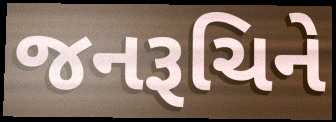
જનરૂચિને